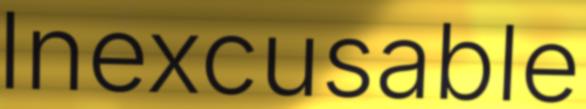
Inexcusable